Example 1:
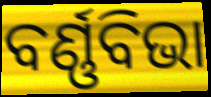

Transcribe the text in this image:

ବର୍ଣ୍ଣବିଭା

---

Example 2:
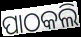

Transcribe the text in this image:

ପାଠକଲି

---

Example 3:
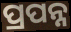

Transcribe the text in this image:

ପ୍ରପନ୍ନ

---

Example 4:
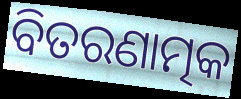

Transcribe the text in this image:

ବିତରଣାତ୍ମକ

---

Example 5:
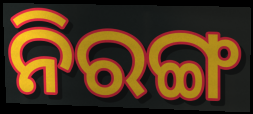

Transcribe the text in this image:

ନିରଙ୍ଗ